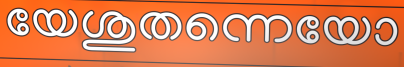
യേശുതന്നെയോ